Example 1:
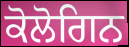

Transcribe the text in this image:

ਕੋਲੋਗਿਨ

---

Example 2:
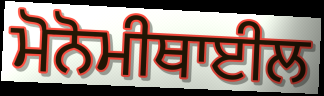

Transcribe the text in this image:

ਮੋਨੋਮੀਥਾਈਲ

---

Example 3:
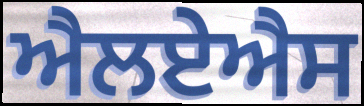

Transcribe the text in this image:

ਐਲਏਐਸ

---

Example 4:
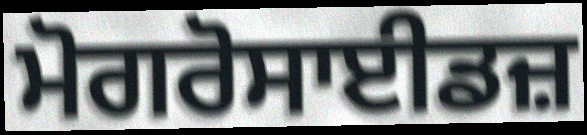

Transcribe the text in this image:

ਮੋਗਰੋਸਾਈਡਜ਼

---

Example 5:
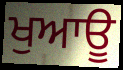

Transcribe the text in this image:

ਖੁਆਊ